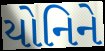
યોનિને